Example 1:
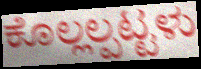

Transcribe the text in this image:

ಕೊಲ್ಲಲ್ಪಟ್ಟಳು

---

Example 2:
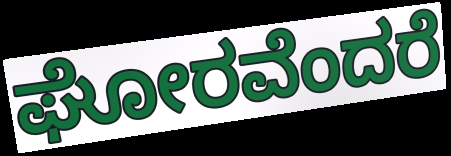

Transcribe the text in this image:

ಘೋರವೆಂದರೆ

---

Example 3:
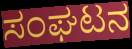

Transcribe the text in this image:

ಸಂಘಟನ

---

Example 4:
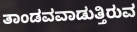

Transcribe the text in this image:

ತಾಂಡವವಾಡುತ್ತಿರುವ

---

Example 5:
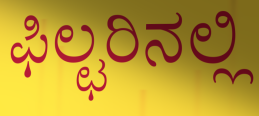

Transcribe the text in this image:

ಫಿಲ್ಟರಿನಲ್ಲಿ